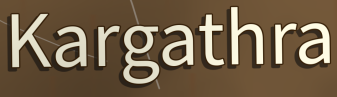
Kargathra